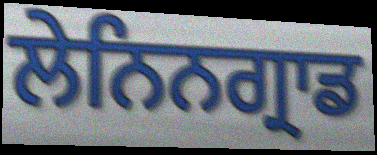
ਲੇਨਿਨਗ੍ਰਾਡ